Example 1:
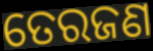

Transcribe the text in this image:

ତେରଜଣ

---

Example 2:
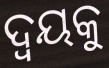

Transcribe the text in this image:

ଦ୍ଵୟକୁ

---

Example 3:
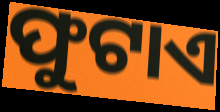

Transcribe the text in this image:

ଫୁଟାଏ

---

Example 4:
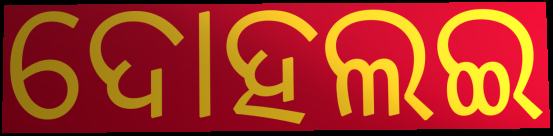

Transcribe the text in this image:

ଦୋହଲଇ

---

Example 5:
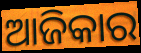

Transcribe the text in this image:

ଆଜିକାର